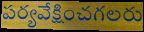
పర్యవేక్షించగలరు